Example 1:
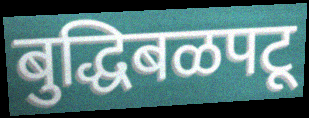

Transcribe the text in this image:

बुद्धिबळपटू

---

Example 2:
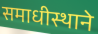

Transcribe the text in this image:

समाधीस्थाने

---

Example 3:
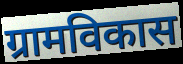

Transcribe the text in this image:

ग्रामविकास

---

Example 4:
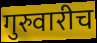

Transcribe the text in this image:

गुरुवारीच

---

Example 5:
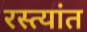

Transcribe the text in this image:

रस्त्यांत